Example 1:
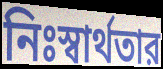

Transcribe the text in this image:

নিঃস্বার্থতার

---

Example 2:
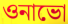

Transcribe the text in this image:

ওনাভো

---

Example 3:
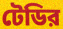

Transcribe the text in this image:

টেডির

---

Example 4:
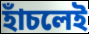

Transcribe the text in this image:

হাঁচলেই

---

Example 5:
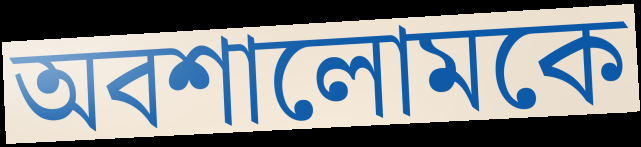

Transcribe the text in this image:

অবশালোমকে